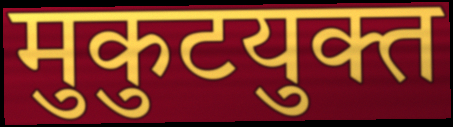
मुकुटयुक्त